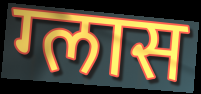
ग्लास